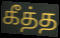
கீத்த